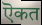
ऎकत